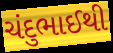
ચંદુભાઈથી